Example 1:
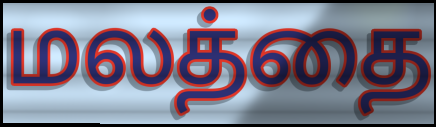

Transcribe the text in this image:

மலத்தை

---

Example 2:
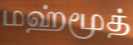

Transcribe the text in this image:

மஹ்மூத்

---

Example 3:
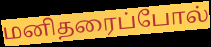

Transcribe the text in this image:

மனிதரைப்போல்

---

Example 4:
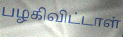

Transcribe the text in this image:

பழகிவிட்டாள்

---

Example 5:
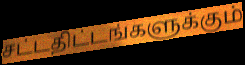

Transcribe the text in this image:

சட்டதிட்டங்களுக்கும்